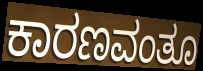
ಕಾರಣವಂತೂ